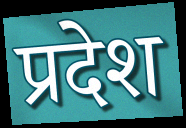
प्रदेश